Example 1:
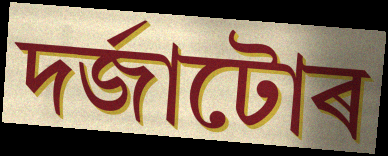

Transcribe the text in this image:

দৰ্জাটোৰ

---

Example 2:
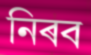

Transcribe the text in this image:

নিৰব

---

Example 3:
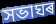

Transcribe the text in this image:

সভাঘৰ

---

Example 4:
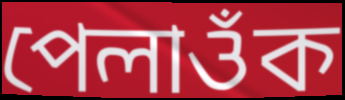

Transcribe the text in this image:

পেলাওঁক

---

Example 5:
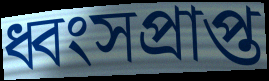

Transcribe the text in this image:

ধ্বংসপ্ৰাপ্ত